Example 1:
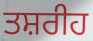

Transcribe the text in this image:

ਤਸ਼ਰੀਹ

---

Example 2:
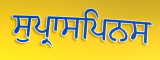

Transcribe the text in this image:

ਸੁਪ੍ਰਾਸਪਿਨਸ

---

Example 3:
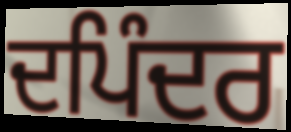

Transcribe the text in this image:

ਦਪਿੰਦਰ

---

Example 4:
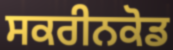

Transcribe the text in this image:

ਸਕਰੀਨਕੋਡ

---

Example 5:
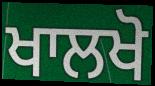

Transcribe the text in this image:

ਖਾਲਖੋ